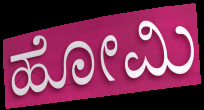
ಹೋಮಿ